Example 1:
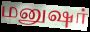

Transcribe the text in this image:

மனுஷர்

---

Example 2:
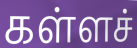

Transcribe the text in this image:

கள்ளச்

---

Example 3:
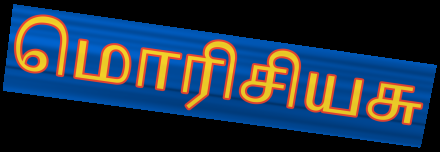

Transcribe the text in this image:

மொரிசியசு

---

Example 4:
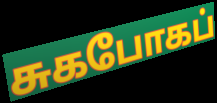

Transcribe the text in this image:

சுகபோகப்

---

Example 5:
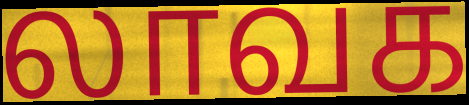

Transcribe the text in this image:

லாவக